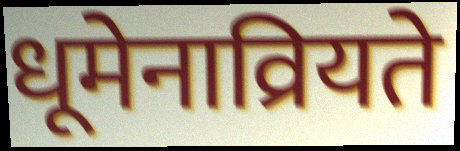
धूमेनाव्रियते